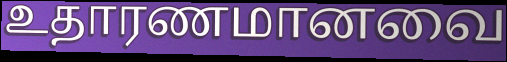
உதாரணமானவை